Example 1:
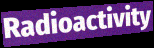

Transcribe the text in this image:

Radioactivity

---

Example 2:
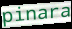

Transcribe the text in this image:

pinara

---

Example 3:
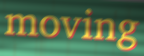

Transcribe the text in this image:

moving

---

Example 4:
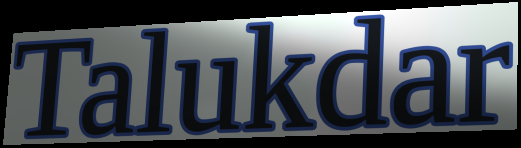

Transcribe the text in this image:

Talukdar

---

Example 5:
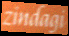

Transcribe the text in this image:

zindagi